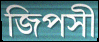
জিপসী